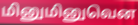
மினுமினுவென